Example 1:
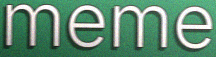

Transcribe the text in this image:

meme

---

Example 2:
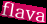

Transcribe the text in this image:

flava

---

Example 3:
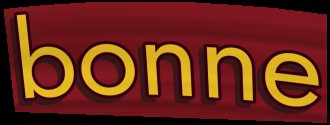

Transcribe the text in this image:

bonne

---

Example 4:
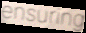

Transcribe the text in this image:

ensuring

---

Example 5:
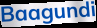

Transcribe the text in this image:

Baagundi